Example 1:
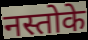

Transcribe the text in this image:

नस्तोके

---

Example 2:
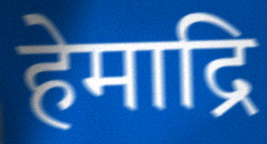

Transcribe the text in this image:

हेमाद्रि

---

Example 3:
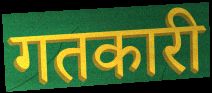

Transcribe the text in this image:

गतकारी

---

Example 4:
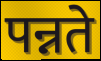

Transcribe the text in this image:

पन्नते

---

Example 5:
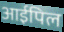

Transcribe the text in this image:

आईपिल